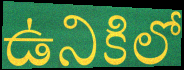
ఉనికిలో